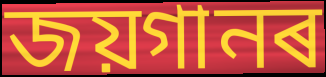
জয়গানৰ